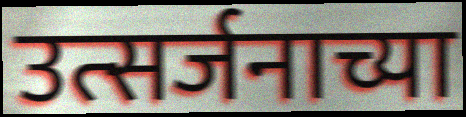
उत्सर्जनाच्या